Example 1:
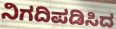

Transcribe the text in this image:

ನಿಗದಿಪಡಿಸಿದ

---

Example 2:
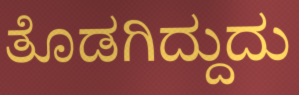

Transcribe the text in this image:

ತೊಡಗಿದ್ದುದು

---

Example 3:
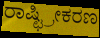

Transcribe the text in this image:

ರಾಷ್ಟ್ರೀಕರಣ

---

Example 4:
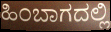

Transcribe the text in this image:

ಹಿಂಬಾಗದಲ್ಲಿ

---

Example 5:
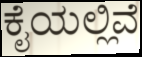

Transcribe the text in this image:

ಕೈಯಲ್ಲಿವೆ